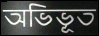
অভিভূত